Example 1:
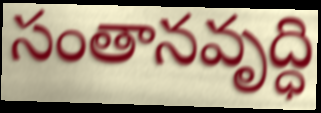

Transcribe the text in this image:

సంతానవృద్ధి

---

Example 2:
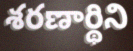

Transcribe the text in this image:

శరణార్థిని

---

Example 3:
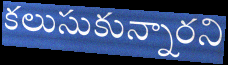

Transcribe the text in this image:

కలుసుకున్నారని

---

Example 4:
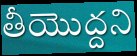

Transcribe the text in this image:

తీయొద్దని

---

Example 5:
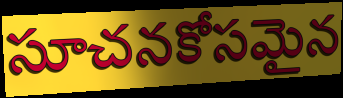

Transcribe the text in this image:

సూచనకోసమైన